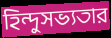
হিন্দুসভ্যতার